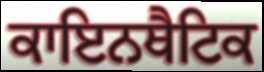
ਕਾਇਨਥੈਟਿਕ